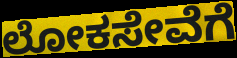
ಲೋಕಸೇವೆಗೆ